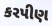
કરપીણ